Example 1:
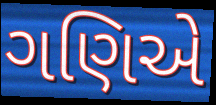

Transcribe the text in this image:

ગણિએ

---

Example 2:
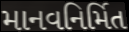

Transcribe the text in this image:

માનવનિર્મિત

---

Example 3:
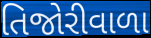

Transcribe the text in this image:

તિજોરીવાળા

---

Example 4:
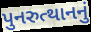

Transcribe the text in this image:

પુનરુત્થાનનું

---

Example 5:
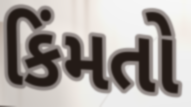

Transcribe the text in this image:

કિંમતો